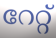
റേറ്റ്